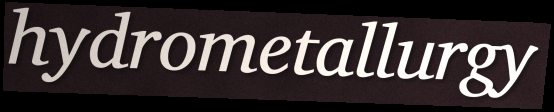
hydrometallurgy